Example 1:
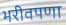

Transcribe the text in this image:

भरीवपणा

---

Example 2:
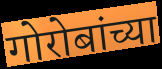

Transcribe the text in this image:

गोरोबांच्या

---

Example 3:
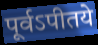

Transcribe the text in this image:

पूर्वऽपीतये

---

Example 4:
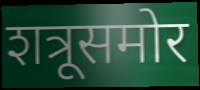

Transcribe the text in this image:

शत्रूसमोर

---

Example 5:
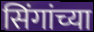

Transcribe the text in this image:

सिंगांच्या